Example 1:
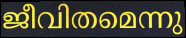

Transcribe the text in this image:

ജീവിതമെന്നു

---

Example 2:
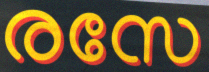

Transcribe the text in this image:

രസേ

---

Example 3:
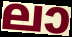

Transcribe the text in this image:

ലാ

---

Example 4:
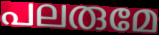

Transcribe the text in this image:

പലരുമേ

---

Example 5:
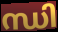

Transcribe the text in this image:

ന്ധി